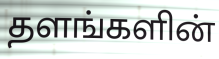
தளங்களின்